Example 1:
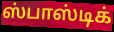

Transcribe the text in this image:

ஸ்பாஸ்டிக்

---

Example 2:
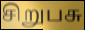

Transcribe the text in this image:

சிறுபசு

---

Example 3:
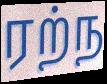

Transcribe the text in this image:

ரற்ந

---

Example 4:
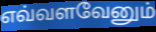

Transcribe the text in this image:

எவ்வளவேனும்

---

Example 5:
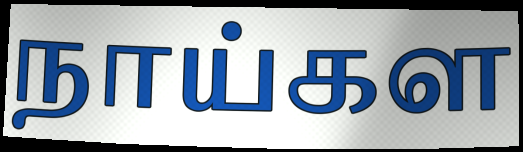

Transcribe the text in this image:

நாய்கள